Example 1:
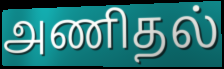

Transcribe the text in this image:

அணிதல்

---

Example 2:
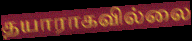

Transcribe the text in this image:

தயாராகவில்லை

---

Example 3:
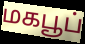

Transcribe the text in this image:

மகபூப்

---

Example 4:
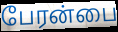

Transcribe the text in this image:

பேரன்பை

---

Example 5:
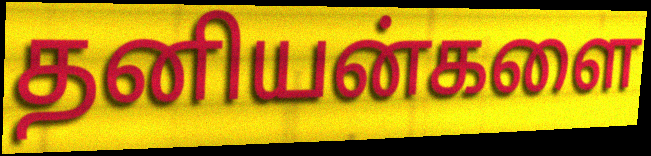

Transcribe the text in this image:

தனியன்களை